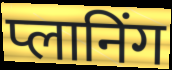
प्‍लानिंग